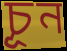
চূন